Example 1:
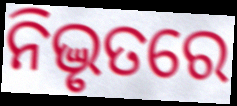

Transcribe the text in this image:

ନିଦ୍ଭୃତରେ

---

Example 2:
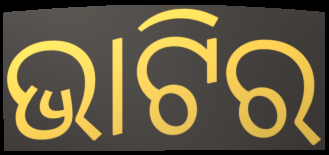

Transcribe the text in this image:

ଭାଟିର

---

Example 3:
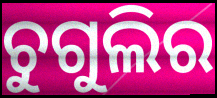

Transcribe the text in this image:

ଚୁଗୁଲିର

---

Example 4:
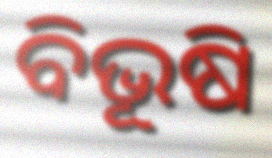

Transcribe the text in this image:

ବିଭୂଷି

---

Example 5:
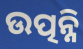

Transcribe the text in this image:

ଉତ୍ପନ୍ନି